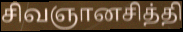
சிவஞானசித்தி